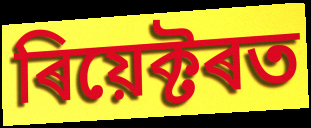
ৰিয়েক্টৰত